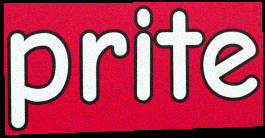
prite